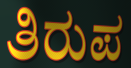
ತಿರುಪ